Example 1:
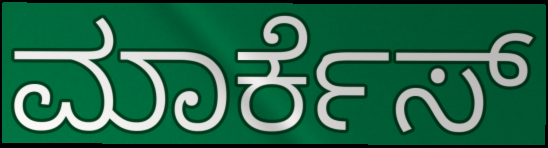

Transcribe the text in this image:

ಮಾರ್ಕೆಸ್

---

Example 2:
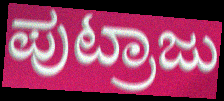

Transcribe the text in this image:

ಪುಟ್ರಾಜು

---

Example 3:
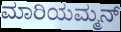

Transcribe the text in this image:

ಮಾರಿಯಮ್ಮನ್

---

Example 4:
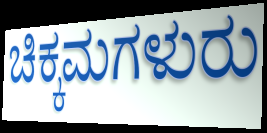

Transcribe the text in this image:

ಚಿಕ್ಕಮಗಳುರು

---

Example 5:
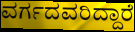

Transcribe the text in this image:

ವರ್ಗದವರಿದ್ದಾರೆ